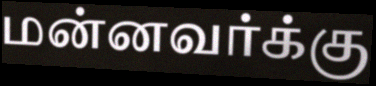
மன்னவர்க்கு